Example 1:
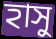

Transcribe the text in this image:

হাসু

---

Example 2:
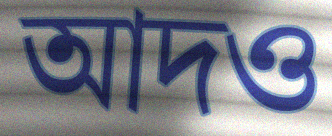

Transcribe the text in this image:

আদও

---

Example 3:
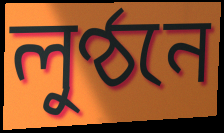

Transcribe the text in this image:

লুণ্ঠনে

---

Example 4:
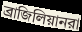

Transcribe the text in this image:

ব্রাজিলিয়ানরা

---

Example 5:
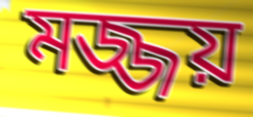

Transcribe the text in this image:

মজ্জয়